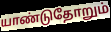
யாண்டுதோறும்